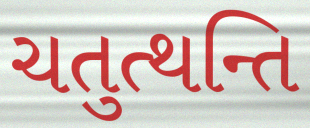
ચતુત્થન્તિ